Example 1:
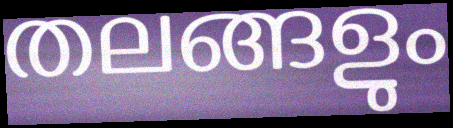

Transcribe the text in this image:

തലങ്ങളും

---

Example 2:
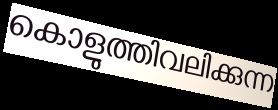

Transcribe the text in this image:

കൊളുത്തിവലിക്കുന്ന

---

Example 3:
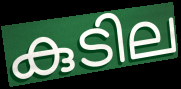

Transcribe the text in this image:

കുടില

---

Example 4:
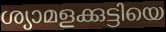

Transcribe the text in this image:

ശ്യാമളക്കുട്ടിയെ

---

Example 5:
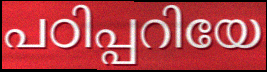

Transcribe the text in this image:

പഠിപ്പറിയേ